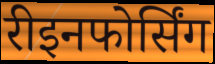
रीइनफोर्सिंग